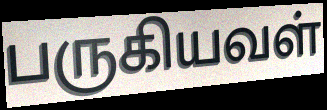
பருகியவள்